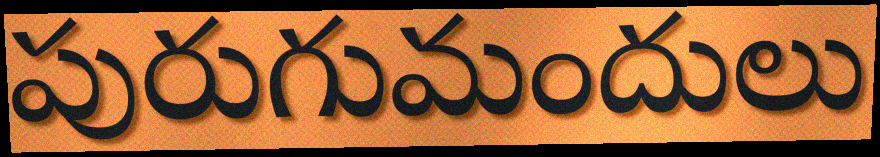
పురుగుమందులు